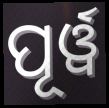
ପୂର୍ୱ